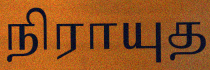
நிராயுத